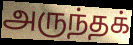
அருந்தக்